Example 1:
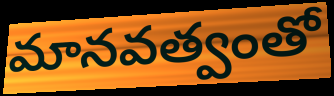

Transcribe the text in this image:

మానవత్వంతో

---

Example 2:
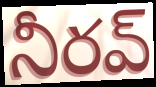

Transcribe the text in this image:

నీరవ్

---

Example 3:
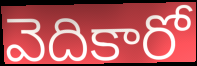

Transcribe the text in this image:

వెదికారో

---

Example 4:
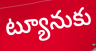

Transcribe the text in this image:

ట్యూనుకు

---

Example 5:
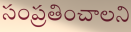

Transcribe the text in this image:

సంప్రతించాలని